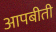
आपबीती